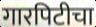
गारपिटीचा